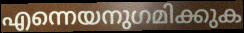
എന്നെയനുഗമിക്കുക